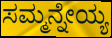
ಸಮ್ಮನ್ನೇಯ್ಯ